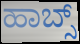
ಹಾಬ್ಸ್